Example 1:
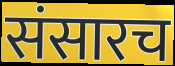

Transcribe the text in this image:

संसारच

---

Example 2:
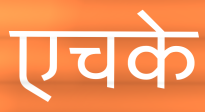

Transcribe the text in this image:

एचके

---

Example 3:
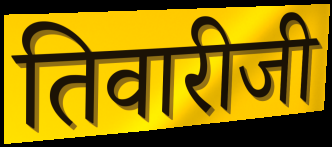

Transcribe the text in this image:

तिवारीजी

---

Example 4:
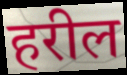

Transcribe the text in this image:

हरील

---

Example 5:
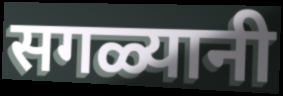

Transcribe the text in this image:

सगळ्यानी